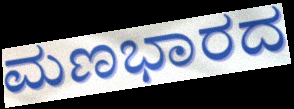
ಮಣಭಾರದ